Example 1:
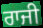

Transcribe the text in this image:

ਰਾਜੀ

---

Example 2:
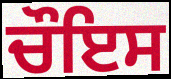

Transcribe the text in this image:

ਚੌਇਸ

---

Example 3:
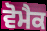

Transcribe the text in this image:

ਵੋਮੈਕ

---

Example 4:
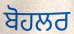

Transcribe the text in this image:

ਬੋਹਲਰ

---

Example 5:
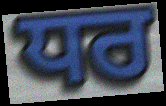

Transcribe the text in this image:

ਧਰ